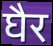
घैर